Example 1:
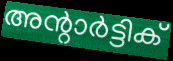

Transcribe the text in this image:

അന്റാർട്ടിക്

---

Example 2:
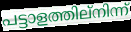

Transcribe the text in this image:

പട്ടാളത്തില്നിന്ന്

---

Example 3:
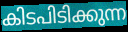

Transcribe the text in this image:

കിടപിടിക്കുന്ന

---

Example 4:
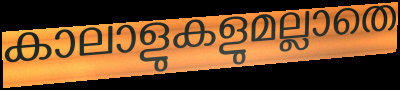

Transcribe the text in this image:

കാലാളുകളുമല്ലാതെ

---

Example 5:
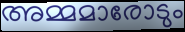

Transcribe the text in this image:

അമ്മമാരോടും